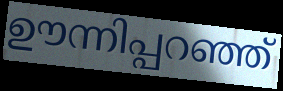
ഊന്നിപ്പറഞ്ഞ്